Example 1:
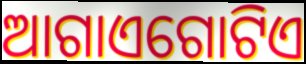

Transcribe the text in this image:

ଆଗାଏଗୋଟିଏ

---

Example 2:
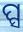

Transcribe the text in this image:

ପ୍ସ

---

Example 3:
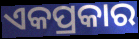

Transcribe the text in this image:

ଏକପ୍ରକାର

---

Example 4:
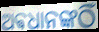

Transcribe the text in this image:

ଅଵଧାନଙ୍କଠିଁ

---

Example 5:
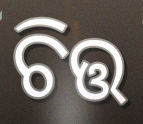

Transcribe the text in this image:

ଚିତ୍ତ